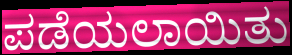
ಪಡೆಯಲಾಯಿತು